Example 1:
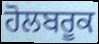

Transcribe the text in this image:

ਹੋਲਬਰੂਕ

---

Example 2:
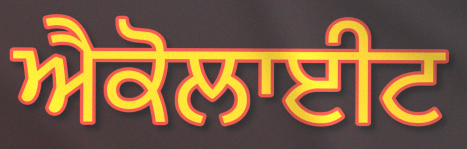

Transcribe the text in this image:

ਐਕੋਲਾਈਟ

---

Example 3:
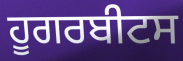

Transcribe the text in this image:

ਹੂਗਰਬੀਟਸ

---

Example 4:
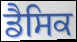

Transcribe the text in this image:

ਡੈਸਿਕ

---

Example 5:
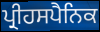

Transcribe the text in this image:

ਪ੍ਰੀਹਸਪੈਨਿਕ